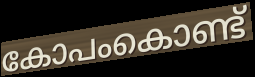
കോപംകൊണ്ട്